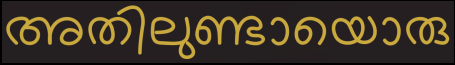
അതിലുണ്ടായൊരു